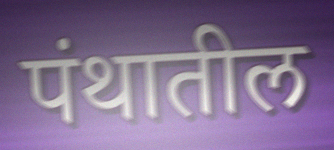
पंथातील